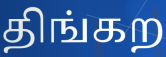
திங்கற